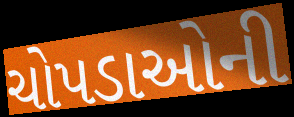
ચોપડાઓની